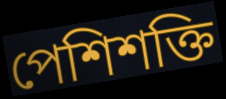
পেশিশক্তি